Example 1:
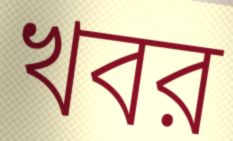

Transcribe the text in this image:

খবর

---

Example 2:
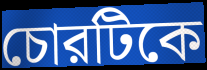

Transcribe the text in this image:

চোরটিকে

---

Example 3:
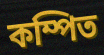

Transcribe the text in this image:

কম্পিত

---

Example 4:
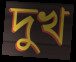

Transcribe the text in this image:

দুখ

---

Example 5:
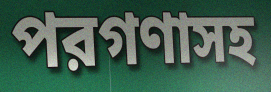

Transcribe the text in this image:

পরগণাসহ